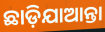
ଛାଡ଼ିଯାଆନ୍ତା